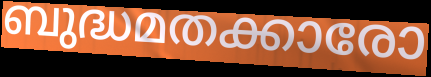
ബുദ്ധമതക്കാരോ